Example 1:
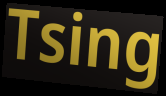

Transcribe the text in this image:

Tsing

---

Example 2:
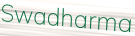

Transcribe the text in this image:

Swadharma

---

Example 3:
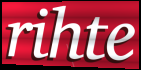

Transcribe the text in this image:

rihte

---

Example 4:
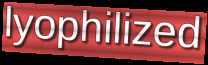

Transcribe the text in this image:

lyophilized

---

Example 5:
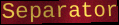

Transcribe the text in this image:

Separator